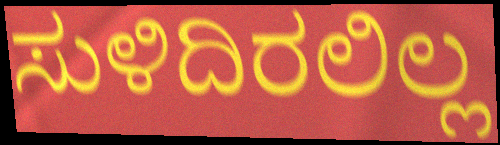
ಸುಳಿದಿರಲಿಲ್ಲ